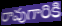
రావుగారికి